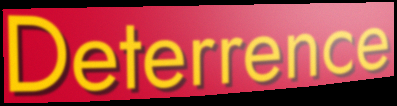
Deterrence